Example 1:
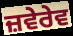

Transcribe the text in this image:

ਜ਼ਵੇਰੇਵ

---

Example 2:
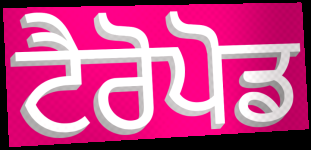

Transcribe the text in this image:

ਟੈਰੋਪੋਡ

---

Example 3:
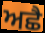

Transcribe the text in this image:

ਅਛੈ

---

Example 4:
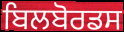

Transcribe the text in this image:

ਬਿਲਬੋਰਡਸ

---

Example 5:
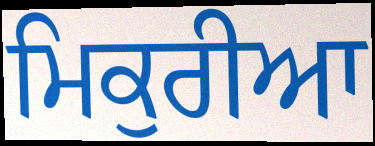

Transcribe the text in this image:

ਮਿਕੁਰੀਆ